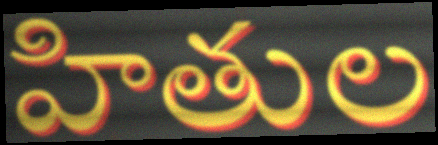
హితుల